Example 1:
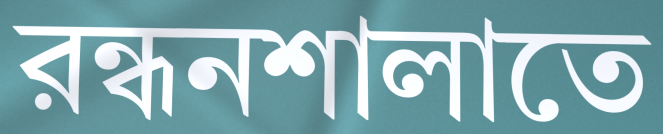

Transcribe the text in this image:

রন্ধনশালাতে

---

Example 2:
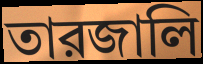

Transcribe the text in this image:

তারজালি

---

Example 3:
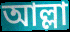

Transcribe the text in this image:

আল্লা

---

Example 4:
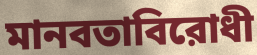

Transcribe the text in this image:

মানবতাবিরোধী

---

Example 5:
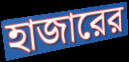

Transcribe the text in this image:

হাজারের